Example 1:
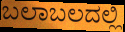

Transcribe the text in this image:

ಬಲಾಬಲದಲ್ಲಿ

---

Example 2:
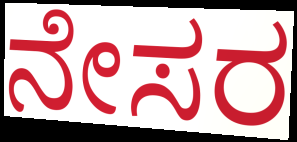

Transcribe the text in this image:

ನೇಸರ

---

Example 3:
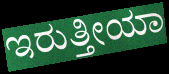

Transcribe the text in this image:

ಇರುತ್ತೀಯಾ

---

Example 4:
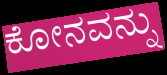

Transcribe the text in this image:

ಕೋನವನ್ನು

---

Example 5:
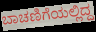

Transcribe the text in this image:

ಬಾಚಣಿಗೆಯಲ್ಲಿದ್ದ